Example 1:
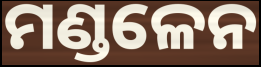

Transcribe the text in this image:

ମଣ୍ଡଳେନ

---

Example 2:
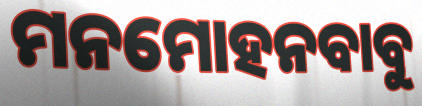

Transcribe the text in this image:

ମନମୋହନବାବୁ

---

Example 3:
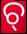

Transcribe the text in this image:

ଚ୍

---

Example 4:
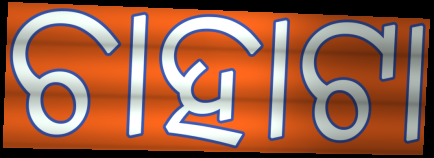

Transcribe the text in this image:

ଚାହାଟା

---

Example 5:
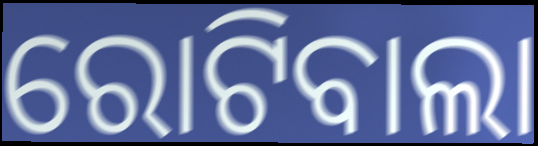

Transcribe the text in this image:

ରୋଟିବାଲା